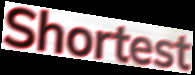
Shortest